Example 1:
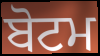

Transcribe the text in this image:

ਬੋਟਮ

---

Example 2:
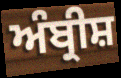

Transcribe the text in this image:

ਅੰਬ੍ਰੀਸ਼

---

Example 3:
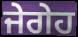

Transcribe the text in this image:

ਜੇਗੇਹ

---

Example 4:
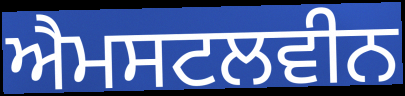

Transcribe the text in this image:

ਐਮਸਟਲਵੀਨ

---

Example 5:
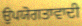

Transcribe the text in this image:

ਉਪਯੋਗਤਾਵਾਦੀ